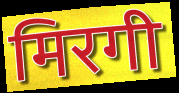
मिरगी